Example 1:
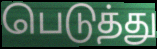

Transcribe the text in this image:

பெடுத்து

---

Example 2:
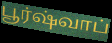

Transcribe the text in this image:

பூர்ஷ்வாப்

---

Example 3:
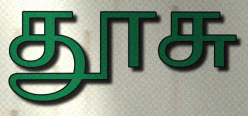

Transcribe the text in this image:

தூசு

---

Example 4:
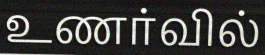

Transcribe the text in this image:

உணர்வில்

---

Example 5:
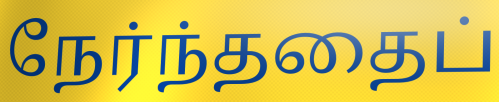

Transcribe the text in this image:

நேர்ந்ததைப்